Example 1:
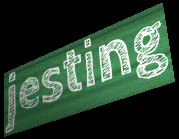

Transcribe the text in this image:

jesting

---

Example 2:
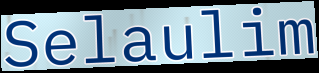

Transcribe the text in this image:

Selaulim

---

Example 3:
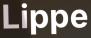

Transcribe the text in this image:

Lippe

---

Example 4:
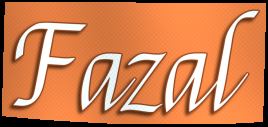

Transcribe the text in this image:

Fazal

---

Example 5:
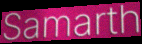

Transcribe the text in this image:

Samarth